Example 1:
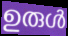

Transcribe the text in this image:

ഉരുൾ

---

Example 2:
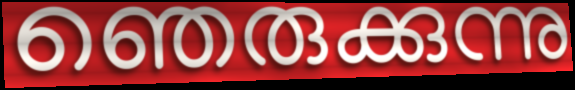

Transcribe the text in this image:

ഞെരുക്കുന്നു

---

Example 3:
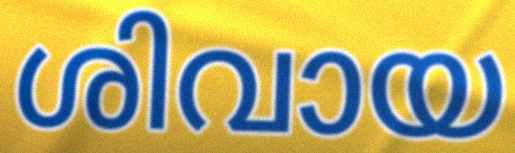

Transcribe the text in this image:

ശിവായ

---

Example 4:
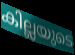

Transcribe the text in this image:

കില്ലയുടെ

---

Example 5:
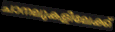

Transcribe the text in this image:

ചാനലുകളിലേക്ക്